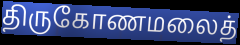
திருகோணமலைத்